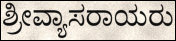
ಶ್ರೀವ್ಯಾಸರಾಯರು